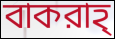
বাকরাহ্